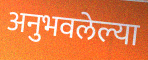
अनुभवलेल्या